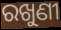
ରଖୁଣୀ